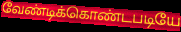
வேண்டிக்கொண்டபடியே